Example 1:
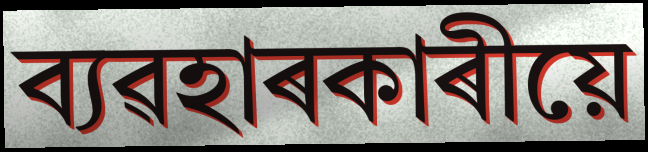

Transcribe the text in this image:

ব্যৱহাৰকাৰীয়ে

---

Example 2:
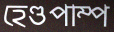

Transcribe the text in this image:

হেণ্ডপাম্প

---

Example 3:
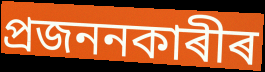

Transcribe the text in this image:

প্ৰজননকাৰীৰ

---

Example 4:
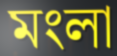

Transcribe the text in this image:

মংলা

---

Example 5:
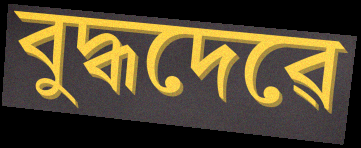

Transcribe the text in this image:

বুদ্ধদেৱে